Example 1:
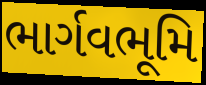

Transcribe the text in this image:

ભાર્ગવભૂમિ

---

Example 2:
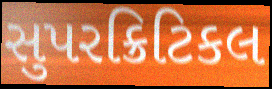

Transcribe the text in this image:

સુપરક્રિટિકલ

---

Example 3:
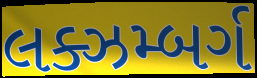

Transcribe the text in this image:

લક્ઝમ્બર્ગ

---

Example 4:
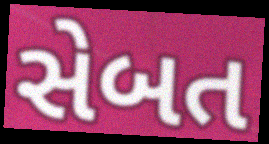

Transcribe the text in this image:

સેબત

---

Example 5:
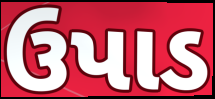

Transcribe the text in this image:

ઉપાડ